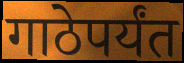
गाठेपर्यंत